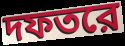
দফতরে